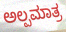
ಅಲ್ಪಮಾತ್ರ